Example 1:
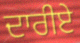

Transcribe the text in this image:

ਦਾਰੀਏ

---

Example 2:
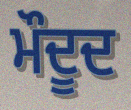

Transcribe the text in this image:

ਮੌਦੂਦ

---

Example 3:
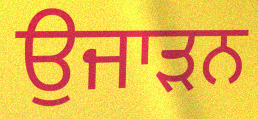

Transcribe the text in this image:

ਉਜਾੜਨ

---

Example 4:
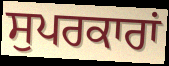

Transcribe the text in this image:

ਸੁਪਰਕਾਰਾਂ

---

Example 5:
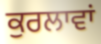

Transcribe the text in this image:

ਕੁਰਲਾਵਾਂ